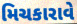
મિચકારાવે